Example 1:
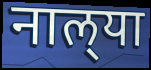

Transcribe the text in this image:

नाल्या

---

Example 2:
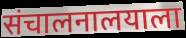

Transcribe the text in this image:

संचालनालयाला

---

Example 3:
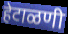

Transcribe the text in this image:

हेटाळणी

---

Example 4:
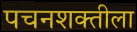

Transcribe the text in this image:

पचनशक्तीला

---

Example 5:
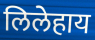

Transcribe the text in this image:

लिलेहाय